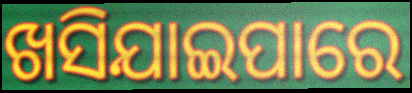
ଖସିଯାଇପାରେ